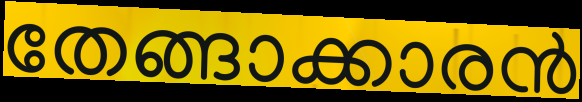
തേങ്ങാക്കാരൻ